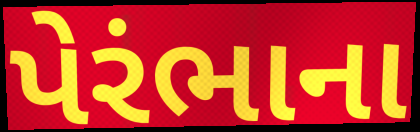
પેરંભાના